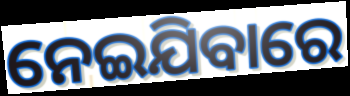
ନେଇଯିବାରେ